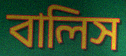
বালিস